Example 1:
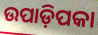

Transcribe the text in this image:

ଉପାଡ଼ିପକା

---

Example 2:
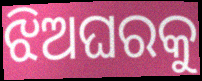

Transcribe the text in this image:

ଝିଅଘରକୁ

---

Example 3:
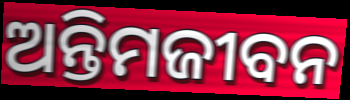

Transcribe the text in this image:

ଅନ୍ତିମଜୀବନ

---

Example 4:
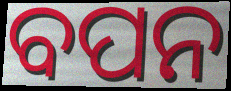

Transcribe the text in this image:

ବପନ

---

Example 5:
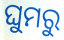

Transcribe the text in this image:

ଘୁମରୁ